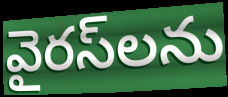
వైరస్‌లను